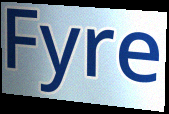
Fyre